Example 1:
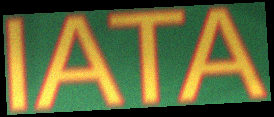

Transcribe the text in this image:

IATA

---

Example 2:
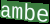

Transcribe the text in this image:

ambe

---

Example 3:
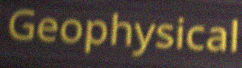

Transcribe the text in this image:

Geophysical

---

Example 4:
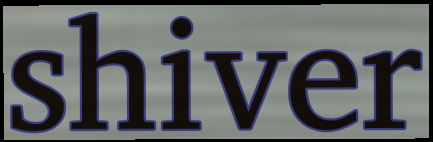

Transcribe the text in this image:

shiver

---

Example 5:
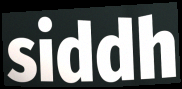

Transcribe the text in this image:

siddh